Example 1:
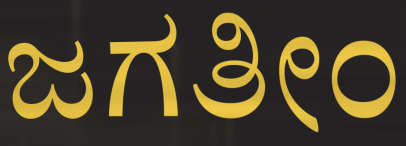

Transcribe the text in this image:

ಜಗತೀಂ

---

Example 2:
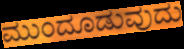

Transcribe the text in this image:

ಮುಂದೂಡುವುದು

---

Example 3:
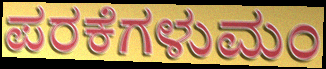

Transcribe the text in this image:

ಪರಕೆಗಳುಮಂ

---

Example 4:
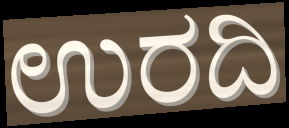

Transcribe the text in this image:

ಉರದಿ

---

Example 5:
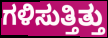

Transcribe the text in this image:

ಗಳಿಸುತ್ತಿತ್ತು